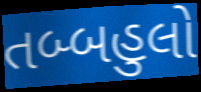
તબ્બહુલો